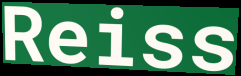
Reiss